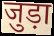
जुड़ा